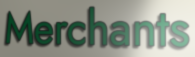
Merchants